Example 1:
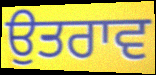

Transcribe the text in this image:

ਉਤਰਾਵ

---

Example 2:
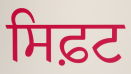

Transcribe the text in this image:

ਸਿਫ਼ਟ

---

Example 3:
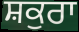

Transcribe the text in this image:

ਸ਼ਕੁਰਾ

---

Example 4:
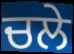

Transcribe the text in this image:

ਚਲੇ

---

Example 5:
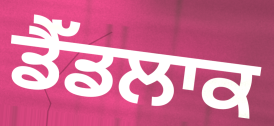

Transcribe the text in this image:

ਡੈੱਡਲਾਕ